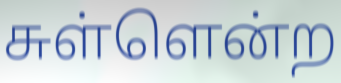
சுள்ளென்ற